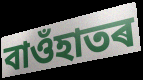
বাওঁহাতৰ